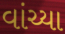
વાંચ્યા